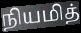
நியமித்